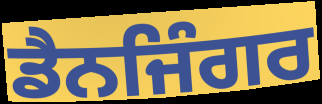
ਡੈਨਜਿੰਗਰ